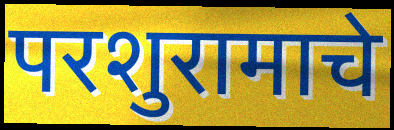
परशुरामाचे